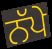
ਨੱਪੇ